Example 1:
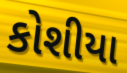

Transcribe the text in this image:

કોશીયા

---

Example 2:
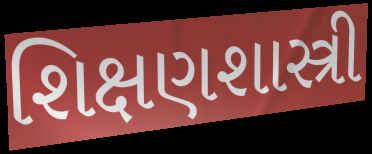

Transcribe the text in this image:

શિક્ષણશાસ્ત્રી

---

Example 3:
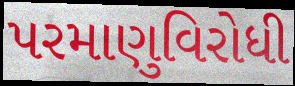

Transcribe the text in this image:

પરમાણુવિરોધી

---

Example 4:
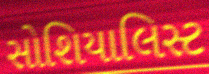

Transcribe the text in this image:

સોશિયાલિસ્ટ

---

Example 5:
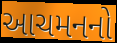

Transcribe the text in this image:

આચમનનો